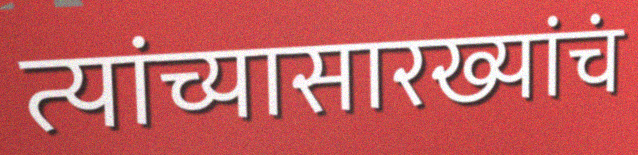
त्यांच्यासारख्यांचं